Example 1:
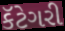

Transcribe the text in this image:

કૅટેગરી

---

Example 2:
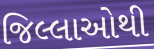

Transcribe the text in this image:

જિલ્લાઓથી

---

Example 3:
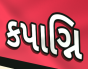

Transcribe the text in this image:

કપાગ્નિ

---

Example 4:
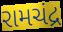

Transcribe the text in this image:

રામચંદ્ર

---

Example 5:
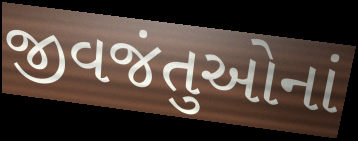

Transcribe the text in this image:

જીવજંતુઓનાં